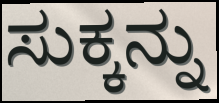
ಸುಕ್ಕನ್ನು